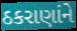
ઠકરાણાંને